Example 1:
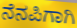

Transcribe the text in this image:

ನೆನಪಿಗಾಗಿ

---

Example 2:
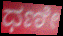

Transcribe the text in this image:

ಧಣೀ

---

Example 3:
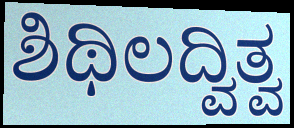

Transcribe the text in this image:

ಶಿಥಿಲದ್ವಿತ್ವ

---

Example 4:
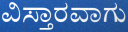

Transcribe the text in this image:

ವಿಸ್ತಾರವಾಗು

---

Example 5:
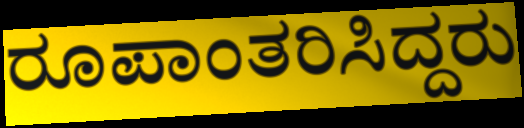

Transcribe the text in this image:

ರೂಪಾಂತರಿಸಿದ್ದರು